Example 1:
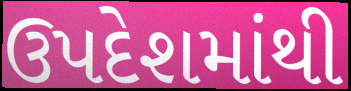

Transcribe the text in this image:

ઉપદેશમાંથી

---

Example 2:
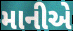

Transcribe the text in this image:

માનીએ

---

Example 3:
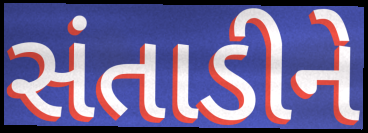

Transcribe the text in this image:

સંતાડીને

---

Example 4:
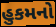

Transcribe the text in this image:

હુકમનો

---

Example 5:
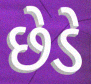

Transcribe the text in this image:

છેડે